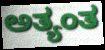
ಅತ್ಯಂತ